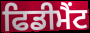
ਫਿਡੀਮੈਂਟ